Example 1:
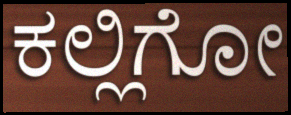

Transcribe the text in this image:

ಕಲ್ಲಿಗೋ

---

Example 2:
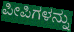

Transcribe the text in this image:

ಪೀಪಿಗಳನ್ನು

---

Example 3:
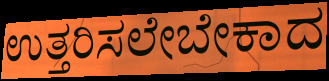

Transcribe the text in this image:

ಉತ್ತರಿಸಲೇಬೇಕಾದ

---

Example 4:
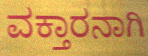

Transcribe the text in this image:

ವಕ್ತಾರನಾಗಿ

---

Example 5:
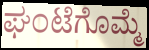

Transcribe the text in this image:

ಘಂಟೆಗೊಮ್ಮೆ